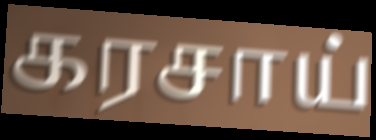
கரசாய்